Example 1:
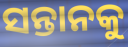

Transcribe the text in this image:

ସନ୍ତାନକୁ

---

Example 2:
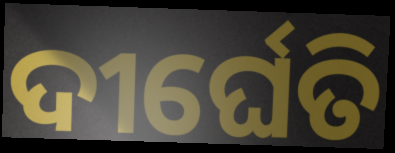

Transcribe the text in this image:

ଦୀର୍ଘେତି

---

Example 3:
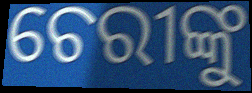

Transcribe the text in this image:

ଚେରୀଙ୍କୁ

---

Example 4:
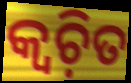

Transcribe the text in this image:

କ୍ୱଚ଼ିତ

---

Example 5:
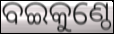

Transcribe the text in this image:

ବଇକୁଣ୍ଠେ